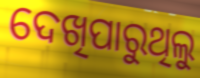
ଦେଖିପାରୁଥିଲୁ